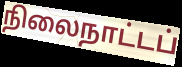
நிலைநாட்டப்